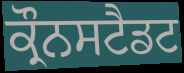
ਕ੍ਰੌਨਸਟੈਡਟ